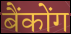
बैंकोंग